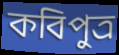
কবিপুত্র